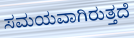
ಸಮಯವಾಗಿರುತ್ತದೆ